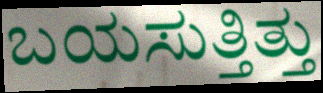
ಬಯಸುತ್ತಿತ್ತು